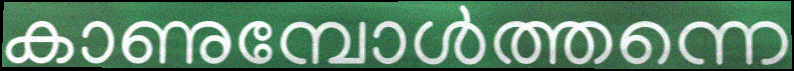
കാണുമ്പോൾത്തന്നെ